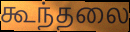
கூந்தலை